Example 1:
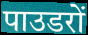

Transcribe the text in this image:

पाउडरों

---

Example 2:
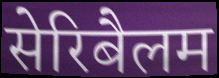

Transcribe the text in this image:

सेरिबैलम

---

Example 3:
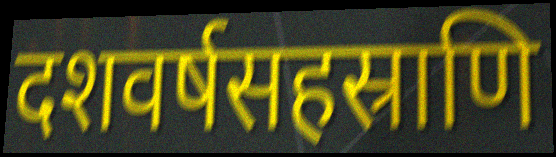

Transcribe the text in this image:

दशवर्षसहस्राणि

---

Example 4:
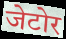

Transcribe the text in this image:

जेटोर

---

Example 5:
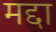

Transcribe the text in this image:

मद्दा